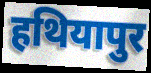
हथियापुर